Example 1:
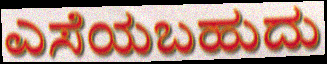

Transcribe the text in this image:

ಎಸೆಯಬಹುದು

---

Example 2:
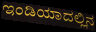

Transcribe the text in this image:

ಇಂಡಿಯಾದಲ್ಲಿನ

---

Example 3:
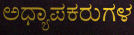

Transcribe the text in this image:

ಅಧ್ಯಾಪಕರುಗಳ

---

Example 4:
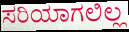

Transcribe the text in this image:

ಸರಿಯಾಗಲಿಲ್ಲ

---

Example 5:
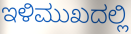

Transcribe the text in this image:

ಇಳಿಮುಖದಲ್ಲಿ